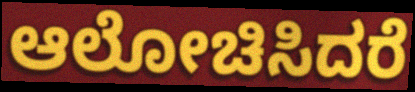
ಆಲೋಚಿಸಿದರೆ